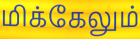
மிக்கேலும்